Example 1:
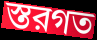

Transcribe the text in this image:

স্তরগত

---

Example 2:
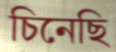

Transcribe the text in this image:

চিনেছি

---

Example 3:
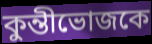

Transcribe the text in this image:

কুন্তীভোজকে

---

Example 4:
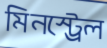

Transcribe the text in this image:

মিনস্ট্রেল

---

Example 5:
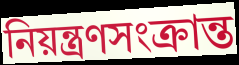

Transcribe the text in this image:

নিয়ন্ত্রণসংক্রান্ত